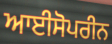
ਆਈਸੋਪਰੀਨ